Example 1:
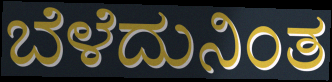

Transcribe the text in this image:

ಬೆಳೆದುನಿಂತ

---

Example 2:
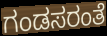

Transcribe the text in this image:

ಗಂಡಸರಂತೆ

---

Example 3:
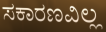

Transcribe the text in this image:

ಸಕಾರಣವಿಲ್ಲ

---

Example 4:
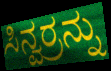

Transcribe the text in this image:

ಸಿನ್ವರ್ರನ್ನು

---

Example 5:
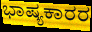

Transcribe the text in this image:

ಭಾಷ್ಯಕಾರರ